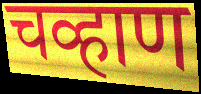
चव्हाण